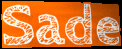
Sade